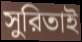
সুরিতাই